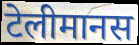
टेलीमानस